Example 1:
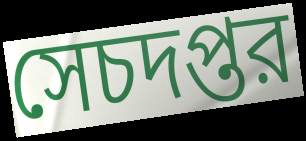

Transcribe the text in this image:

সেচদপ্তর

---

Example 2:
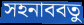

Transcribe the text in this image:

সহনাববতু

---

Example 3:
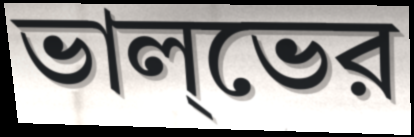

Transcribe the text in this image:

ভাল্ভের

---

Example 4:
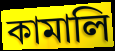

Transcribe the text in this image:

কামালি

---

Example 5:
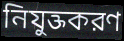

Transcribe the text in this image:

নিযুক্তকরণ